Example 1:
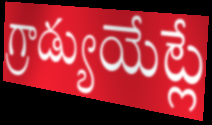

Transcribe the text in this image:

గ్రాడ్యుయేట్లే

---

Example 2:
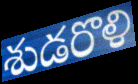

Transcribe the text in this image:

శుడరొళి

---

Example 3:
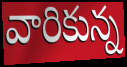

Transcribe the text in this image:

వారికున్న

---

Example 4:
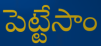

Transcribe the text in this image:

పెట్టేసాం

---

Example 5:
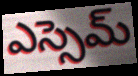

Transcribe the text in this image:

ఎస్సెమ్